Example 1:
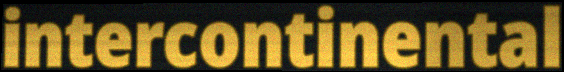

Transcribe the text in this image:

intercontinental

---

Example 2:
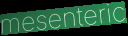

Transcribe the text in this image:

mesenteric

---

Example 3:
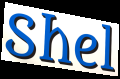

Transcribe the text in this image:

Shel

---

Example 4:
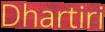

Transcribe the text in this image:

Dhartiri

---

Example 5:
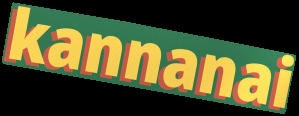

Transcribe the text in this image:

kannanai